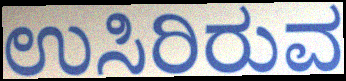
ಉಸಿರಿರುವ